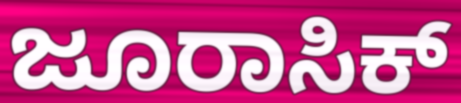
ಜೂರಾಸಿಕ್